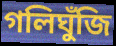
গলিঘুঁজি